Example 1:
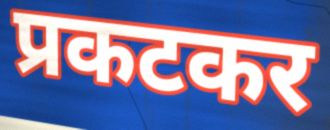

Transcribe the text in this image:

प्रकटकर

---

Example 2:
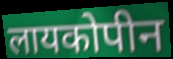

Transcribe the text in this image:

लायकोपीन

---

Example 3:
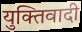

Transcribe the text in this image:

युक्तिवादी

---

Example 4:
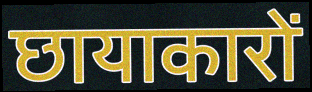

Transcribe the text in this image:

छायाकारों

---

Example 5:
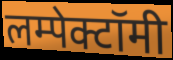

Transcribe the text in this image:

लम्पेक्टॉमी